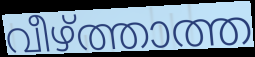
വീഴ്ത്താത്ത